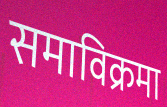
समाविक्रमा